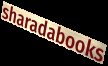
sharadabooks